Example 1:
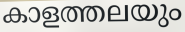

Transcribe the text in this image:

കാളത്തലയും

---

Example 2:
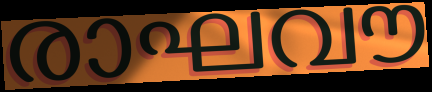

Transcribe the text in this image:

രാഘവൗ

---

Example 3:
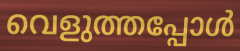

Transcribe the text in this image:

വെളുത്തപ്പോൾ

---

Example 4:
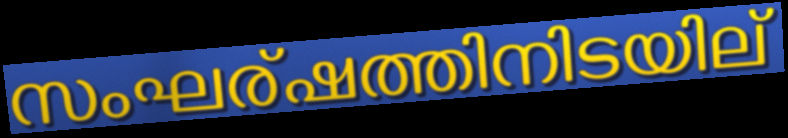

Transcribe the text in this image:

സംഘര്ഷത്തിനിടയില്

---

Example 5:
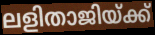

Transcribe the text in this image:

ലളിതാജിയ്ക്ക്